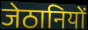
जेठानियों